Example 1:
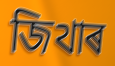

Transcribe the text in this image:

জিথাৰ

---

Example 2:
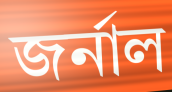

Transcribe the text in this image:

জৰ্নাল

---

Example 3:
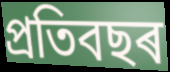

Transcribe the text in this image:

প্ৰতিবছৰ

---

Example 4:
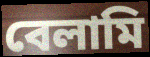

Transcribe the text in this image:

বেলামি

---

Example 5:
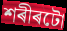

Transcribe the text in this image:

শৰীৰটো